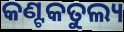
କଣ୍ଟକତୁଲ୍ୟ